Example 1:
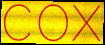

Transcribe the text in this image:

cox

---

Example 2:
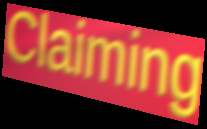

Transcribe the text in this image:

Claiming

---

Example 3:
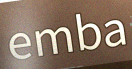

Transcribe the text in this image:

emba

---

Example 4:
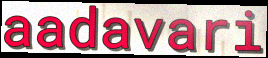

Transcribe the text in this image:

aadavari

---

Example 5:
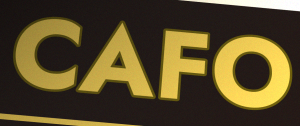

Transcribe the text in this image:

CAFO